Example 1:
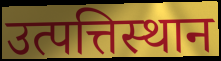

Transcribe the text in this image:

उत्पत्तिस्थान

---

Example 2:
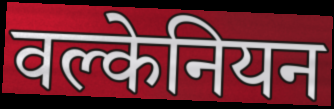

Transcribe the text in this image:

वल्केनियन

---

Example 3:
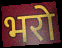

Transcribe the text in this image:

भरो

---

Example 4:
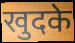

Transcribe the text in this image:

खुदके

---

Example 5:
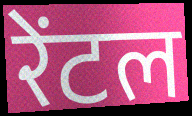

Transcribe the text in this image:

रेंटल